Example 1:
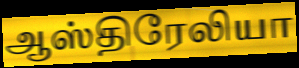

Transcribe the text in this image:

ஆஸ்திரேலியா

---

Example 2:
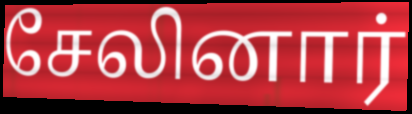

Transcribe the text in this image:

சேலினார்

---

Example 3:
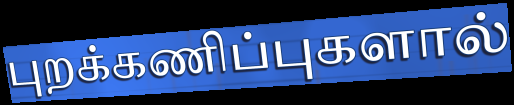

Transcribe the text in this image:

புறக்கணிப்புகளால்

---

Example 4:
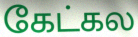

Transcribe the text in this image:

கேட்கல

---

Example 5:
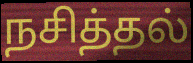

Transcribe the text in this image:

நசித்தல்